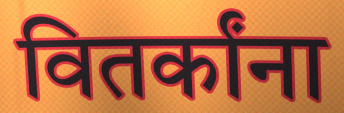
वितर्कांना